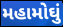
મહામોઘું